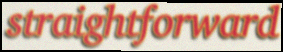
straightforward